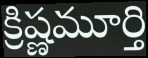
క్రిష్ణమూర్తి